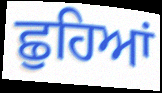
ਛੁਹਿਆਂ